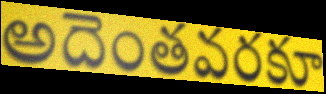
అదెంతవరకూ